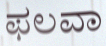
ಫಲವಾ